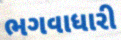
ભગવાધારી